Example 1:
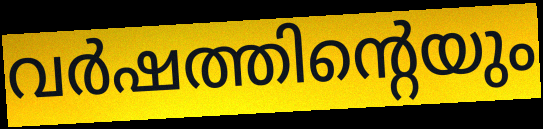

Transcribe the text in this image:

വർഷത്തിന്റെയും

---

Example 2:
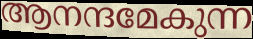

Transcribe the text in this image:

ആനന്ദമേകുന്ന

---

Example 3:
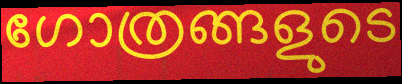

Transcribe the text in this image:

ഗോത്രങ്ങളുടെ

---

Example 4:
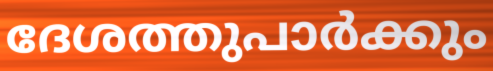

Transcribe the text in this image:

ദേശത്തുപാർക്കും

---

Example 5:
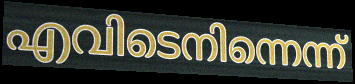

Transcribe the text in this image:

എവിടെനിന്നെന്ന്